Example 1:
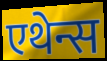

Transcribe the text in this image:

एथेन्स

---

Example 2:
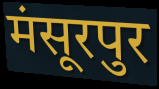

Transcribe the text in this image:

मंसूरपुर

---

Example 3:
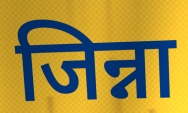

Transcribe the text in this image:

जिन्ना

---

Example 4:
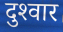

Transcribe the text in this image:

दुश्‍वार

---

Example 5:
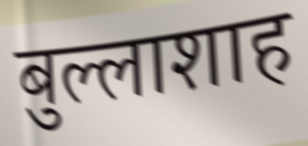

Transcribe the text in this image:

बुल्लाशाह